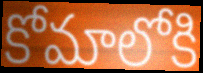
కోమాలోకి